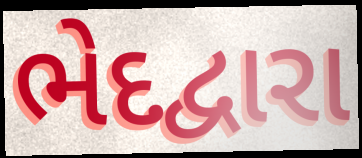
ભેદદ્વારા